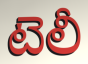
టెలీ